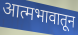
आत्मभावातून